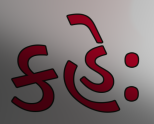
કહેઃ